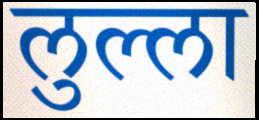
लुल्ला